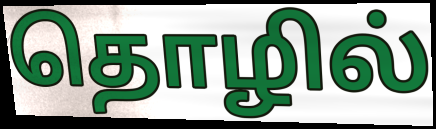
தொழில்